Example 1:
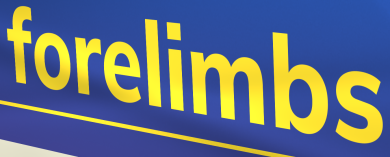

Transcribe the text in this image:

forelimbs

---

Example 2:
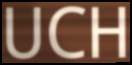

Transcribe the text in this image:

UCH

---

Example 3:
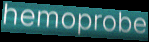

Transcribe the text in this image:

hemoprobe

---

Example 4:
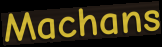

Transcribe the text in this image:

Machans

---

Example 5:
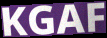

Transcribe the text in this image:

KGAF